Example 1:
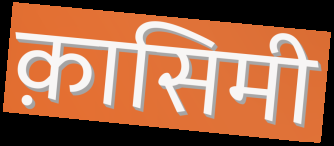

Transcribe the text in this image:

क़ासिमी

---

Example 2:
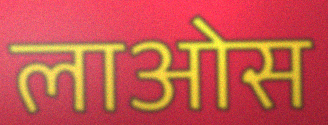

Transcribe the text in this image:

लाओस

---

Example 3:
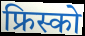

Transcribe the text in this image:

फ्रिस्को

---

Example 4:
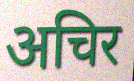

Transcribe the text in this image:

अचिर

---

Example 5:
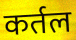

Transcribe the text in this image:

कर्तल